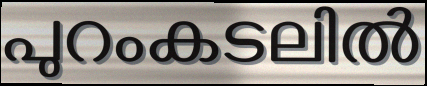
പുറംകടലിൽ